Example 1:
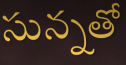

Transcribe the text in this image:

సున్నతో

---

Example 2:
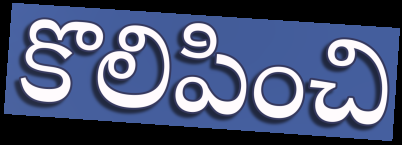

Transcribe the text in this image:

కొలిపించి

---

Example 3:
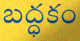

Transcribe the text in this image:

బద్ధకం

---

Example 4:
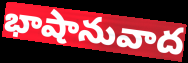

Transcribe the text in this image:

భాషానువాద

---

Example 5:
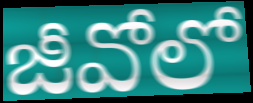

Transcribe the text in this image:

జీవోలో